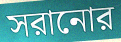
সরানোর